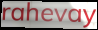
rahevay